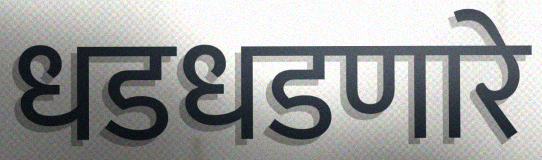
धडधडणारे